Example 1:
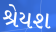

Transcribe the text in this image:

શ્રેયશ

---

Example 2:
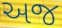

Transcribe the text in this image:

અજ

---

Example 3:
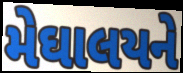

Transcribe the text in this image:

મેઘાલયને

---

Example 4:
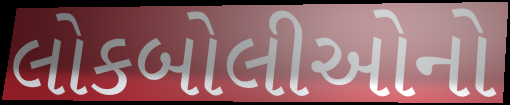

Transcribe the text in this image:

લોકબોલીઓનો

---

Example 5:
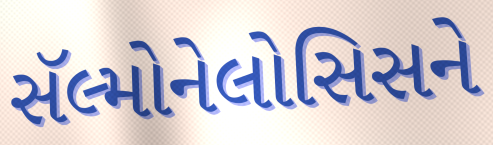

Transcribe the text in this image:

સૅલ્મોનેલોસિસને